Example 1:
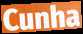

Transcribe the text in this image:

Cunha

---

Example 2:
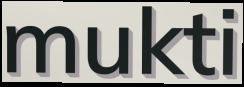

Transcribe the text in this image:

mukti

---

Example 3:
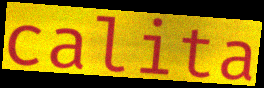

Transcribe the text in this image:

calita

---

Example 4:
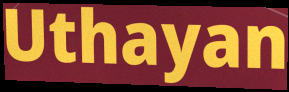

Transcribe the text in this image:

Uthayan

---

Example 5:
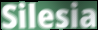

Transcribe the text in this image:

Silesia